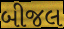
બીજલ